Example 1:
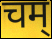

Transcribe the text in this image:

चम्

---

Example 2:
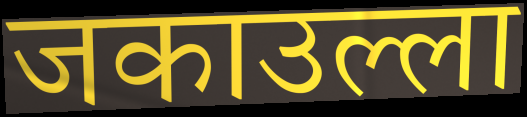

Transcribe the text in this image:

जकाउल्ला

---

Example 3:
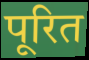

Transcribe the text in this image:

पूरित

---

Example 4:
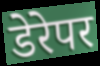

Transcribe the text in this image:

डेरेपर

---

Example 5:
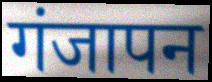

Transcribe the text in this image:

गंजापन